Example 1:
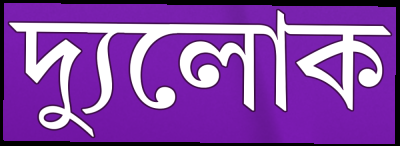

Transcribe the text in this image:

দ্যুলোক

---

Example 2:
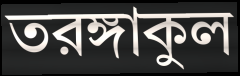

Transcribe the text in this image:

তরঙ্গাকুল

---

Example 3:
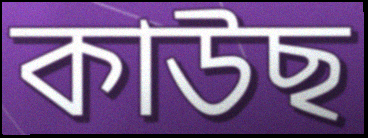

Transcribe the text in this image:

কাউছ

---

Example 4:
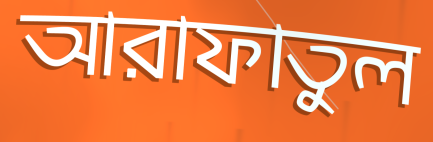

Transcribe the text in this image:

আরাফাতুল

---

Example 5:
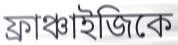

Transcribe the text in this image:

ফ্রাঞ্চাইজিকে